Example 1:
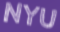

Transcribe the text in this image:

NYU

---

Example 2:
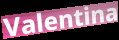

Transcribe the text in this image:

Valentina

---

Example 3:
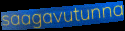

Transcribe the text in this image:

saagavutunna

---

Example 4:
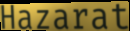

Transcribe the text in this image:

Hazarat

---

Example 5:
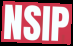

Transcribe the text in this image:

NSIP